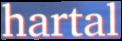
hartal